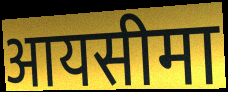
आयसीमा